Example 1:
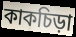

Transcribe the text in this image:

কাকচিড়া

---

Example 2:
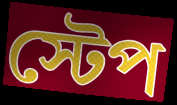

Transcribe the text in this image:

স্টেপ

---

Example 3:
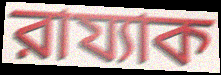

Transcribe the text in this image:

রায্যাক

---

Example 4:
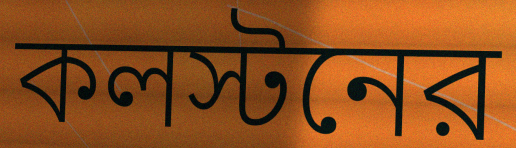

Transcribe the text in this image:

কলস্টনের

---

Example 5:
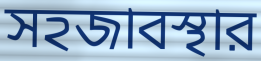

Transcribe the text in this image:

সহজাবস্থার